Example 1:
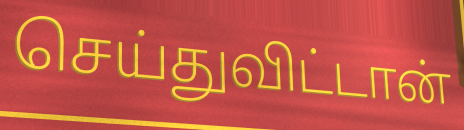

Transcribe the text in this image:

செய்துவிட்டான்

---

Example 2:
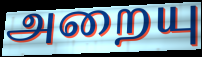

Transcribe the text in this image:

அறையு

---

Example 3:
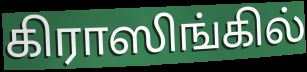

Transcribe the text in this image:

கிராஸிங்கில்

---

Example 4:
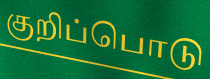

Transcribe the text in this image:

குறிப்பொடு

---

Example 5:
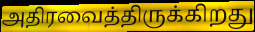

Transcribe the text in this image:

அதிரவைத்திருக்கிறது